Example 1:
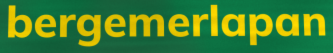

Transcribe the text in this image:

bergemerlapan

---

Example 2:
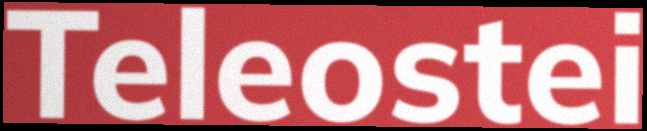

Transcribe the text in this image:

Teleostei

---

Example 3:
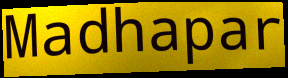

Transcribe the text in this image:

Madhapar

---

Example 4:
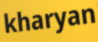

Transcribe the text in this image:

kharyan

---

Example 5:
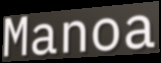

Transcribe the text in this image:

Manoa